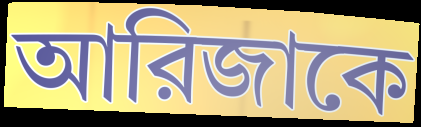
আরিজাকে